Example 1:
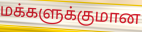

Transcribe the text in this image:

மக்களுக்குமான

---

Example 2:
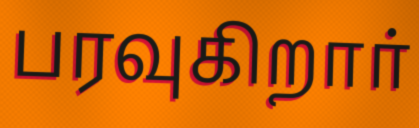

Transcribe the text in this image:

பரவுகிறார்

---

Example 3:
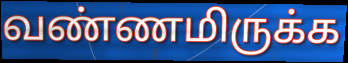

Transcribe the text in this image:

வண்ணமிருக்க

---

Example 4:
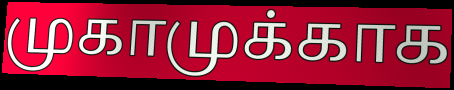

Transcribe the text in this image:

முகாமுக்காக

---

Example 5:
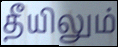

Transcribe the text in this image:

தீயிலும்